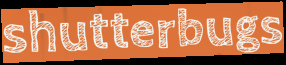
shutterbugs